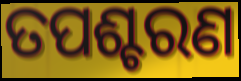
ତପଶ୍ଚରଣ